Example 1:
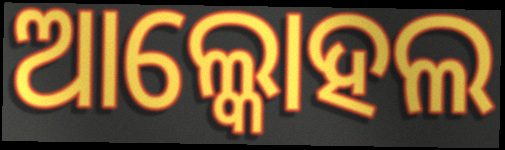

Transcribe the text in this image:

ଆଲ୍କୋହଲ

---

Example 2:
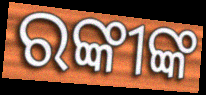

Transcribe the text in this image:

ରଙ୍କୀଙ୍କ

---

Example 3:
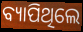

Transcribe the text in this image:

ବ୍ୟାପିଥିଲେ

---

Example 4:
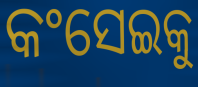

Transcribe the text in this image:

କଂସେଇକୁ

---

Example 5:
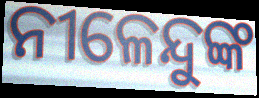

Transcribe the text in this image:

ନୀଳେନ୍ଦୁଙ୍କ